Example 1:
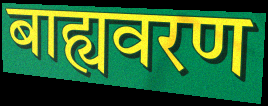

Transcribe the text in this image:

बाह्यवरण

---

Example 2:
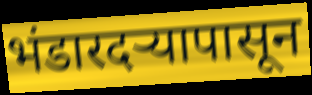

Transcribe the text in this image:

भंडारदऱ्यापासून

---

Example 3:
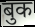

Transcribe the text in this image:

बुक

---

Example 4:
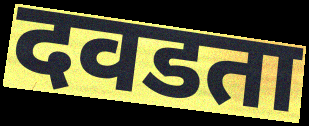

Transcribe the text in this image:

दवडता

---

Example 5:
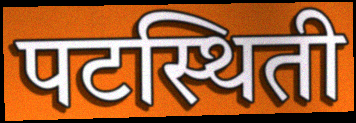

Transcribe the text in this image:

पटस्थिती